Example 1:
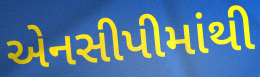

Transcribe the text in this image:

એનસીપીમાંથી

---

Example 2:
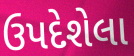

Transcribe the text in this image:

ઉપદેશેલા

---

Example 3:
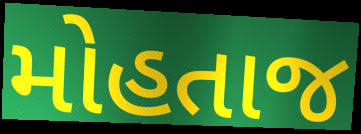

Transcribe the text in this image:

મોહતાજ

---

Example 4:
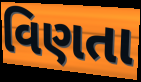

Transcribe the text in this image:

વિણતા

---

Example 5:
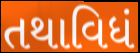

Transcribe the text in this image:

તથાવિધં